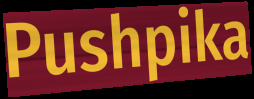
Pushpika